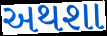
અથશા